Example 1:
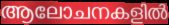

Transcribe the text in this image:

ആലോചനകളിൽ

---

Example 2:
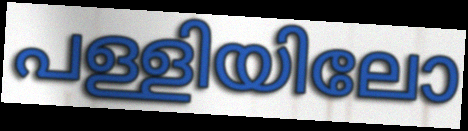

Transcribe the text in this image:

പള്ളിയിലോ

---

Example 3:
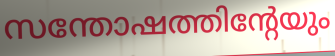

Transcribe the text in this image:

സന്തോഷത്തിന്റേയും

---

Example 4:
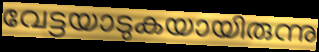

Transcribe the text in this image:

വേട്ടയാടുകയായിരുന്നു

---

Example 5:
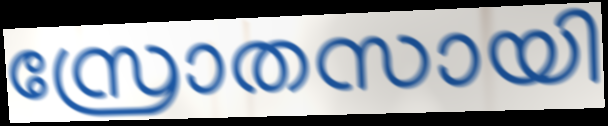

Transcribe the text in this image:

സ്രോതസായി